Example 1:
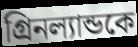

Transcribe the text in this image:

গ্রিনল্যান্ডকে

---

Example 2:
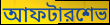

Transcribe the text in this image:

আফটারশেভ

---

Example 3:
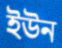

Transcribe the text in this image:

ইউন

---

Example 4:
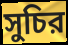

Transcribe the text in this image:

সুচির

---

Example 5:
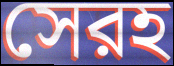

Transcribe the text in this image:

সেরহ